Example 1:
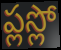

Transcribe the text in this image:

ప్లస్లో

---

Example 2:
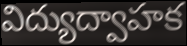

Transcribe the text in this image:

విద్యుద్వాహక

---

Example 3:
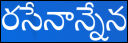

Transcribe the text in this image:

రసేనాన్నేన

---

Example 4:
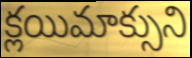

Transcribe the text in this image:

క్లయిమాక్సుని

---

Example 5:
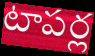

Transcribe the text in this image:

టాపర్ల